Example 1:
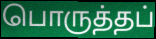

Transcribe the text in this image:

பொருத்தப்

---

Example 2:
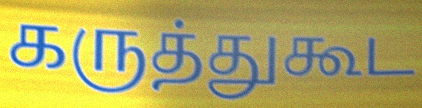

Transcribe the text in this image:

கருத்துகூட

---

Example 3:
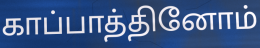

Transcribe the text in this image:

காப்பாத்தினோம்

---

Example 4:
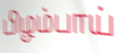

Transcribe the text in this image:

பிழம்பாய்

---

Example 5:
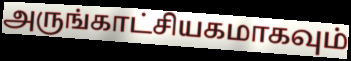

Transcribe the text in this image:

அருங்காட்சியகமாகவும்